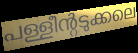
പള്ളീന്റടുക്കലെ